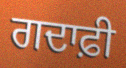
ਗਦਾਫ਼ੀ